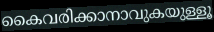
കൈവരിക്കാനാവുകയുള്ളൂ